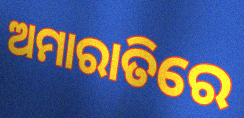
ଅମାରାତିରେ